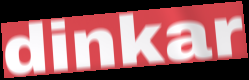
dinkar